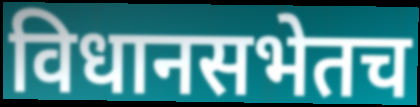
विधानसभेतच